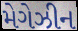
મેગેઝીન